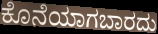
ಕೊನೆಯಾಗಬಾರದು